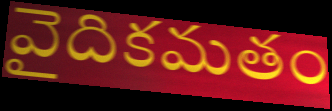
వైదికమతం